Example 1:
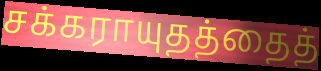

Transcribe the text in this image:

சக்கராயுதத்தைத்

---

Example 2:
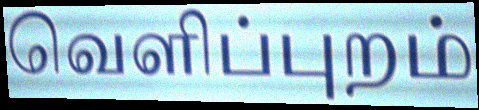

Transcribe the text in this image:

வெளிப்புறம்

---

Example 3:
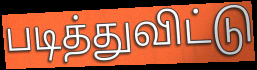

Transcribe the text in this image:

படித்துவிட்டு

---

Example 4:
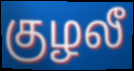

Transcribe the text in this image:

குழலீ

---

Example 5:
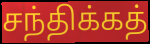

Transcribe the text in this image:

சந்திக்கத்